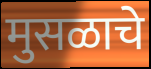
मुसळाचे